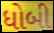
ધોબી